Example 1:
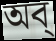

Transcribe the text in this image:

অব্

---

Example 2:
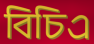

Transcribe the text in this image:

বিচিএ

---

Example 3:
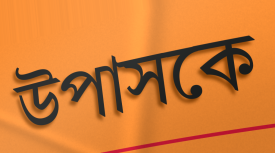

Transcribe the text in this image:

উপাসকে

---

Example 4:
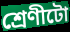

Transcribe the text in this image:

শ্ৰেণীটো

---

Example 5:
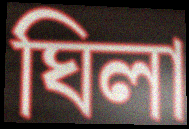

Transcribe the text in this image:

ঘিলা